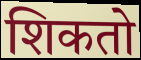
शिकतो